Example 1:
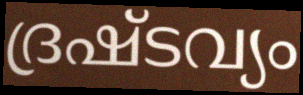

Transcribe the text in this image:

ദ്രഷ്ടവ്യം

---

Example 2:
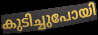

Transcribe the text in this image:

കുടിച്ചുപോയി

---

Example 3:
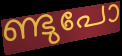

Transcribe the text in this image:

ണ്ടുപോ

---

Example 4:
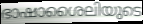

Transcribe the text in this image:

ഭാഷാശൈലിയുടെ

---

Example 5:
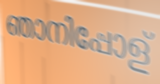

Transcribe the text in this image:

ഞാനിപ്പോള്